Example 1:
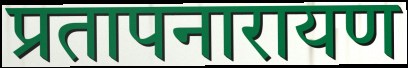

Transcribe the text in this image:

प्रतापनारायण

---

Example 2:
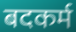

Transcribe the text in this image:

बदकर्म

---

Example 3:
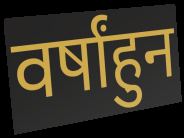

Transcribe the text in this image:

वर्षांहुन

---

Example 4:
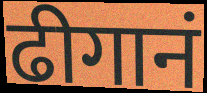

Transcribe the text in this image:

ढीगानं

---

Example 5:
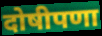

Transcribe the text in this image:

दोषीपणा